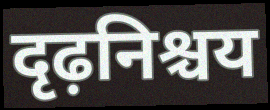
दृढ़निश्चय